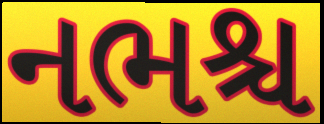
નભશ્ચ